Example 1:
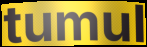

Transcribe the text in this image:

tumul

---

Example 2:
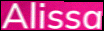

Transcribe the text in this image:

Alissa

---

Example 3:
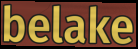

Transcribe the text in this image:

belake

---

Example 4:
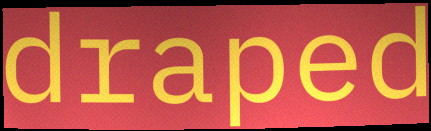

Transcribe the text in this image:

draped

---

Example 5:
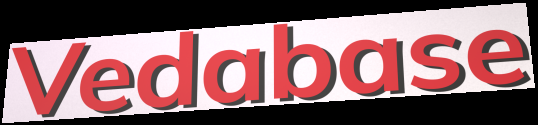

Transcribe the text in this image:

Vedabase